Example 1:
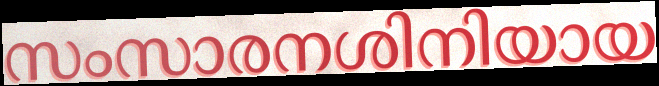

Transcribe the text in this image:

സംസാരനശിനിയായ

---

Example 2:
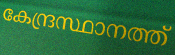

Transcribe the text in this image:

കേന്ദ്രസ്ഥാനത്ത്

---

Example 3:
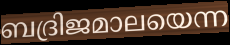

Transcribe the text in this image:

ബദ്രിജമാലയെന്ന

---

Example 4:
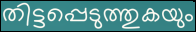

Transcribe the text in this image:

തിട്ടപ്പെടുത്തുകയും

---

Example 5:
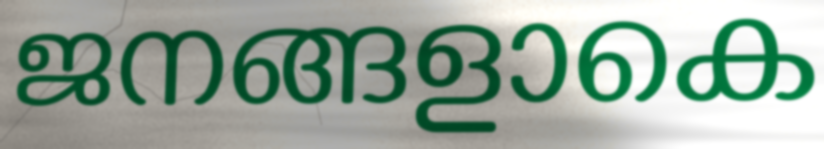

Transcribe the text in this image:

ജനങ്ങളാകെ